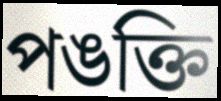
পঙক্তি